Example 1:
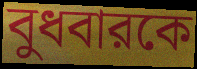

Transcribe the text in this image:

বুধবারকে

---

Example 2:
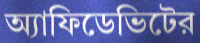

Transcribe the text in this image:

অ্যাফিডেভিটের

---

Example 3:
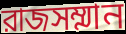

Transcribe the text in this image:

রাজসম্মান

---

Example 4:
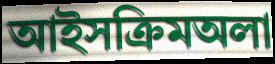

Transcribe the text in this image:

আইসক্রিমঅলা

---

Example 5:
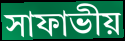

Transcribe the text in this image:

সাফাভীয়